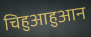
चिहुआहुआन